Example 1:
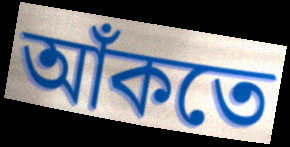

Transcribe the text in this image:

আঁকতে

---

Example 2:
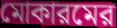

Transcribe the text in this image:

মোকারমের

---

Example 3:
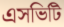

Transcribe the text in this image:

এসভিটি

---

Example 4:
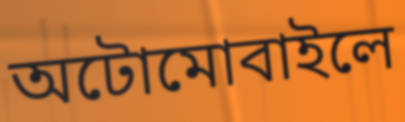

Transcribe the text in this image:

অটোমোবাইলে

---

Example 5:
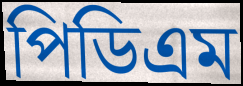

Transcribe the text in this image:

পিডিএম